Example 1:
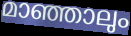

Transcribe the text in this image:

മാഞ്ഞാലും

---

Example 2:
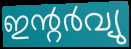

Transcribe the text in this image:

ഇന്റർവ്യു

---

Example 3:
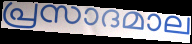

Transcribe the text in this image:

പ്രസാദമാല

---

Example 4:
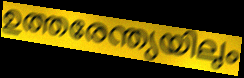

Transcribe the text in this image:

ഉത്തരേന്ത്യയിലും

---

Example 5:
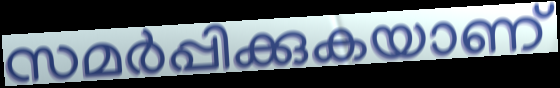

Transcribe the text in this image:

സമർപ്പിക്കുകയാണ്